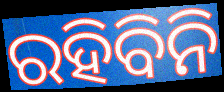
ରହିବିନି